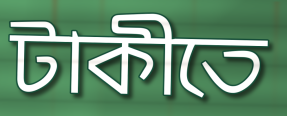
টাকীতে